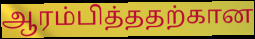
ஆரம்பித்ததற்கான